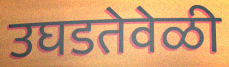
उघडतेवेळी